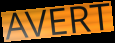
AVERT